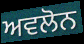
ਅਵਲੋਨ